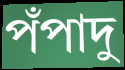
পঁপাদু